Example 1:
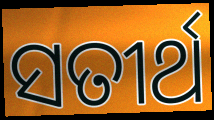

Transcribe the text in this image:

ସତୀର୍ଥ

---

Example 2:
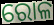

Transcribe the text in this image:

ରୋଳ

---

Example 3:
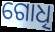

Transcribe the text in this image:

ଗୋଧି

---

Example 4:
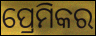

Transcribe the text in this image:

ପ୍ରେମିକର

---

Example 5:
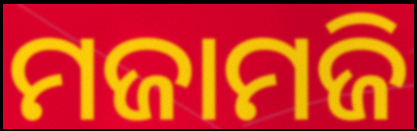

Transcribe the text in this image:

ମଜାମଜି